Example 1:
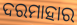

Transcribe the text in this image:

ଦରମାହାର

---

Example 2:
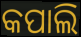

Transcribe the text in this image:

କପାଲି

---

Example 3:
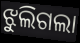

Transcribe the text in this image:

ଝୁଲିଗଲା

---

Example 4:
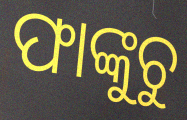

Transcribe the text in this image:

ଫାଙ୍କୁଚୁ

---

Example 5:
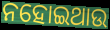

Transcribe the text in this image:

ନହୋଇଥାଉ